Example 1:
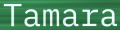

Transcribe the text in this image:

Tamara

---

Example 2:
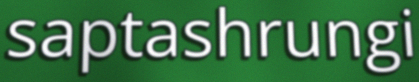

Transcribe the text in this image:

saptashrungi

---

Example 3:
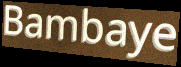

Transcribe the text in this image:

Bambaye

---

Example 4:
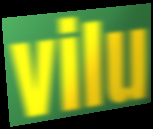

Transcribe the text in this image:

vilu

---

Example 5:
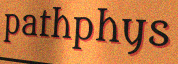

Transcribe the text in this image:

pathphys